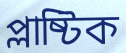
প্লাষ্টিক